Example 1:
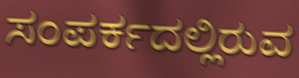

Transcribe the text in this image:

ಸಂಪರ್ಕದಲ್ಲಿರುವ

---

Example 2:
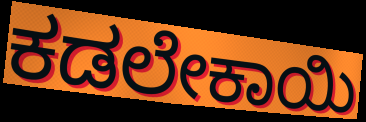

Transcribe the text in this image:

ಕಡಲೇಕಾಯಿ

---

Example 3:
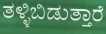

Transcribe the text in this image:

ತಳ್ಳಿಬಿಡುತ್ತಾರೆ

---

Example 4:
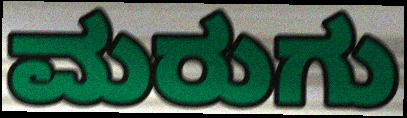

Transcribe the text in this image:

ಮರುಗು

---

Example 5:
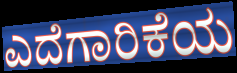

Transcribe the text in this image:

ಎದೆಗಾರಿಕೆಯ